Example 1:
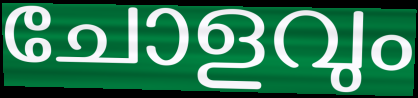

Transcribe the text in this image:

ചോളവും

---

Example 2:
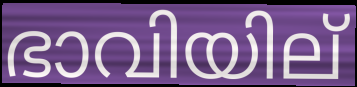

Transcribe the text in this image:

ഭാവിയില്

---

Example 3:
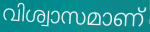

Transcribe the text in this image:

വിശ്വാസമാണ്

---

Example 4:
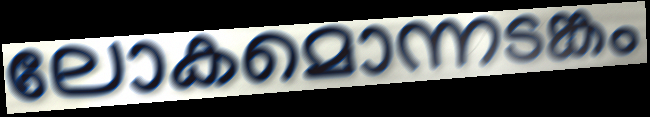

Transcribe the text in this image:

ലോകമൊന്നടങ്കം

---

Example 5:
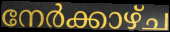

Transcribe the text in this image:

നേർക്കാഴ്ച